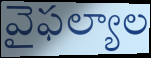
వైఫల్యాల